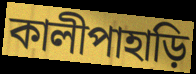
কালীপাহাড়ি